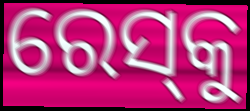
ରେସ୍‌କୁ